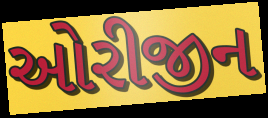
ઓરીજીન